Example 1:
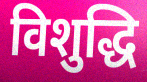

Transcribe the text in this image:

विशुद्धि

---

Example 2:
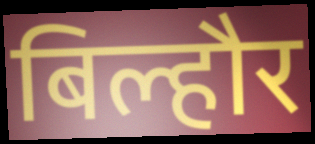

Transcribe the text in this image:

बिल्हौर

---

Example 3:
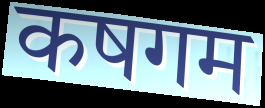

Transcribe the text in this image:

कषगम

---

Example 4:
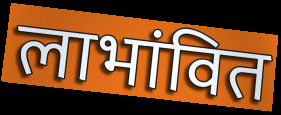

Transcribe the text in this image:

लाभांवित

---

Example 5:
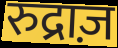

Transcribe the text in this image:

रुद्राज़